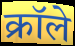
क्रॉले